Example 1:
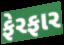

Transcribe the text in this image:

ફેરફાર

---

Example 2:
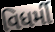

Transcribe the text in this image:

વિધર્મી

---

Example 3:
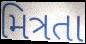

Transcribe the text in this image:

મિત્રતા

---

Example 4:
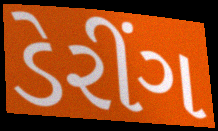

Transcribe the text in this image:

ડેરીંગ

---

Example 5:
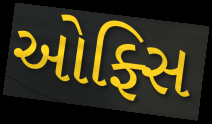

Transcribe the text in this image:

ઓફ્સિ